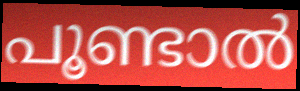
പൂണ്ടാൽ